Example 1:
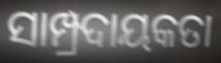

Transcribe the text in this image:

ସାମ୍ପ୍ରଦାୟକତା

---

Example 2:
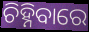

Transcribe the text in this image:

ଚିହ୍ନିବାରେ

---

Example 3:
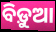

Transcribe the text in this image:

ବିଡ଼ୁଆ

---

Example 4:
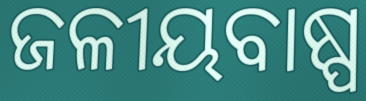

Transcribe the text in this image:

ଜଳୀୟବାଷ୍ପ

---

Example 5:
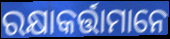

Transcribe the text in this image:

ରକ୍ଷାକର୍ତ୍ତାମାନେ